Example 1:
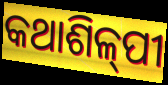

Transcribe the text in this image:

କଥାଶିଳ୍‌ପୀ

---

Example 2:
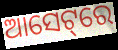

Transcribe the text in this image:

ଆସେଟ୍‌ରେ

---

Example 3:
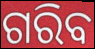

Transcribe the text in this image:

ଗରିବ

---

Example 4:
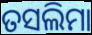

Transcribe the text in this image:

ତସଲିମା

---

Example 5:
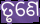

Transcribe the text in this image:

ତୃଣେ